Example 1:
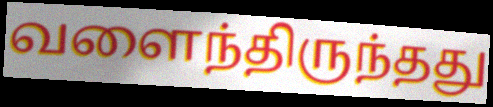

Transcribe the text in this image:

வளைந்திருந்தது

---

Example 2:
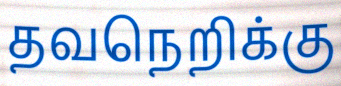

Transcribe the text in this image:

தவநெறிக்கு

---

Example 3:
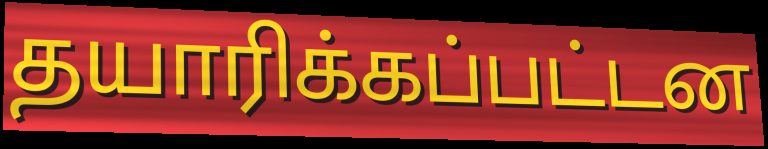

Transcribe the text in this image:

தயாரிக்கப்பட்டன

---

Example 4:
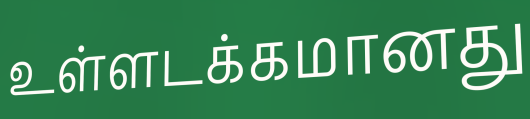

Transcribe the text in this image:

உள்ளடக்கமானது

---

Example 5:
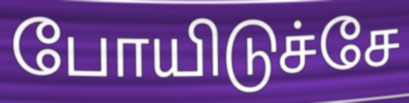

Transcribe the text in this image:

போயிடுச்சே